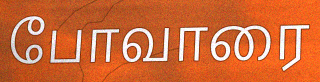
போவாரை